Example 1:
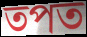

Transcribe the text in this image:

তপত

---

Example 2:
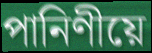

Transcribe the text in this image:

পানিণীয়ে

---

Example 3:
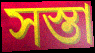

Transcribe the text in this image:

সস্তা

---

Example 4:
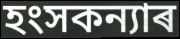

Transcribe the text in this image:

হংসকন্যাৰ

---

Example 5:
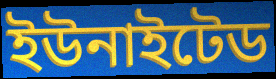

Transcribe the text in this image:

ইউনাইটেড